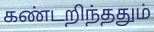
கண்டறிந்ததும்